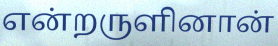
என்றருளினான்